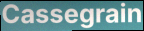
Cassegrain